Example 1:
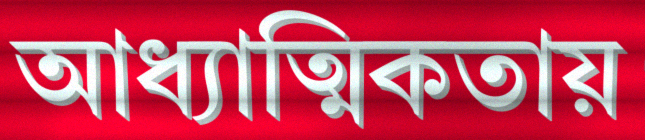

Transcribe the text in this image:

আধ্যাত্মিকতায়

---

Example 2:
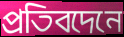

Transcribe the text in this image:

প্রতিবদেনে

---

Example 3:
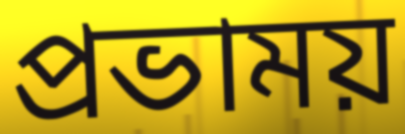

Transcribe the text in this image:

প্রভাময়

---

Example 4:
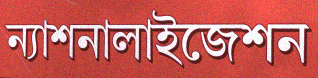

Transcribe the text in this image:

ন্যাশনালাইজেশন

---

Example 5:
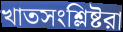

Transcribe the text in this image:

খাতসংশ্লিষ্টরা